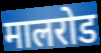
मालरोड